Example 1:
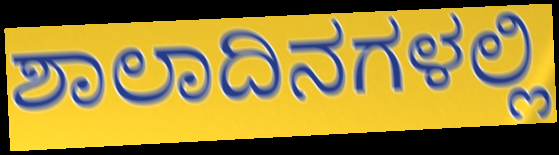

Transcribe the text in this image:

ಶಾಲಾದಿನಗಳಲ್ಲಿ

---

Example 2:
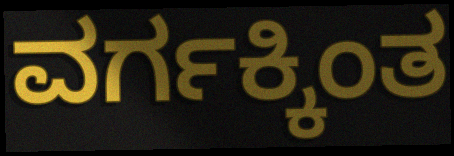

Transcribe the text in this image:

ವರ್ಗಕ್ಕಿಂತ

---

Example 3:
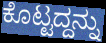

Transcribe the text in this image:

ಕೊಟ್ಟದ್ದನ್ನು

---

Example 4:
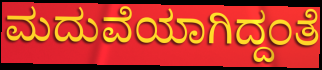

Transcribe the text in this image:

ಮದುವೆಯಾಗಿದ್ದಂತೆ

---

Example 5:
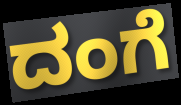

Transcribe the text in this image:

ದಂಗೆ